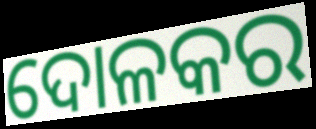
ଦୋଳକର